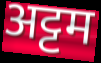
अट्टम